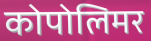
कोपोलिमर